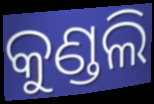
କୁଣ୍ଡଲି